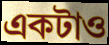
একটাও